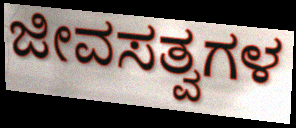
ಜೀವಸತ್ವಗಳ